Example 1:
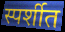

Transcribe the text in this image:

स्पर्शीत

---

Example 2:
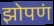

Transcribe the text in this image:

झोपणं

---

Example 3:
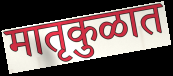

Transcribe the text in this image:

मातृकुळात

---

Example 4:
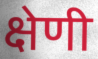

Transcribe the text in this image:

क्षेणी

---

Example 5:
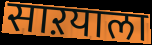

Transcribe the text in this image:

साऱयाला